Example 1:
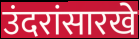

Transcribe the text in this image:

उंदरांसारखे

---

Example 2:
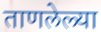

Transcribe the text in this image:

ताणलेल्या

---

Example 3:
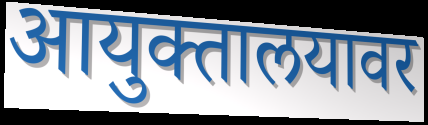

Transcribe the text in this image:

आयुक्तालयावर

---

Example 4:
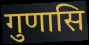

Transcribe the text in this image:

गुणासि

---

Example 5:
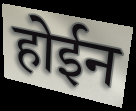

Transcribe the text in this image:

होईन